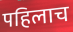
पहिलाच